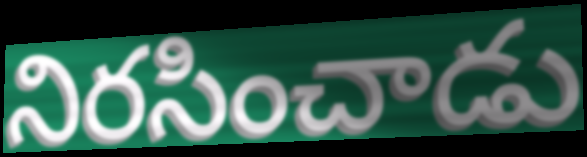
నిరసించాడు